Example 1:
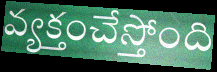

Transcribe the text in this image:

వ్యక్తంచేస్తోంది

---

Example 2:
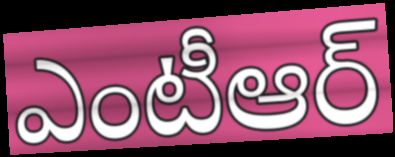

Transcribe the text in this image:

ఎంటీఆర్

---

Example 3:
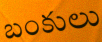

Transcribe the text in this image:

బంకులు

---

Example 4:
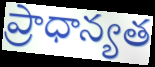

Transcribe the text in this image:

ప్రాధాన్యత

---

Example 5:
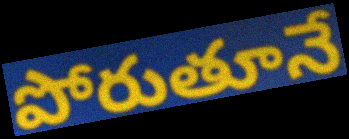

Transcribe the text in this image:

పోరుతూనే